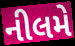
નીલમે